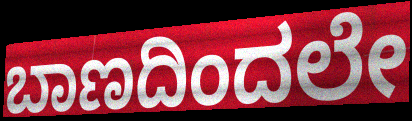
ಬಾಣದಿಂದಲೇ